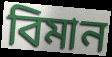
বিমান